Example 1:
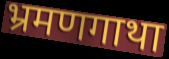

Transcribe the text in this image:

भ्रमणगाथा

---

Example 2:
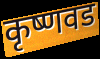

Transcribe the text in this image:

कृष्णवड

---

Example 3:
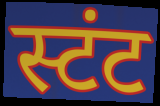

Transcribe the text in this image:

स्टंट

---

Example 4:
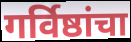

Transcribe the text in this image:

गर्विष्ठांचा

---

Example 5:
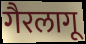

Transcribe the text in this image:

गैरलागू